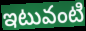
ఇటువంటి